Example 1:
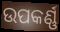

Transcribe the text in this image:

ଉପକର୍ଣ୍ଣ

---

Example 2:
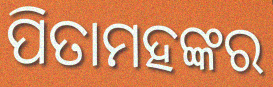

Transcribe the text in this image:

ପିତାମହଙ୍କର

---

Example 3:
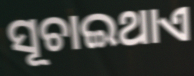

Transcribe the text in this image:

ସୂଚାଇଥାଏ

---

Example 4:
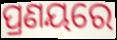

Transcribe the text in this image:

ପ୍ରଣୟରେ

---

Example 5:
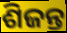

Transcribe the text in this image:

ଶିଜନ୍ତ